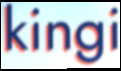
kingi